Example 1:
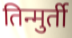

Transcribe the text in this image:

तिन्मुर्ती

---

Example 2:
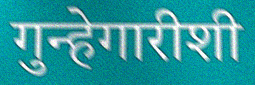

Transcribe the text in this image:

गुन्हेगारीशी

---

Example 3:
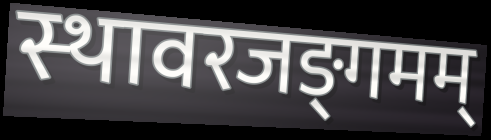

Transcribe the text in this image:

स्थावरजङ्गमम्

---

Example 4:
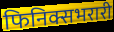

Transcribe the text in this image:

फिनिक्सभरारी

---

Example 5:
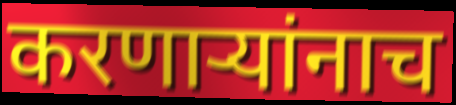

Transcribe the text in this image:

करणार्‍यांनाच